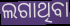
ଲଗାଥିବା